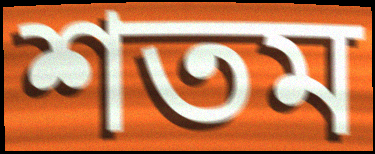
শতম